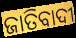
ଜାତିବାଦୀ